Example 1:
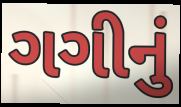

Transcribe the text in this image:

ગગીનું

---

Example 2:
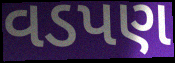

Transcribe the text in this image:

વડપણ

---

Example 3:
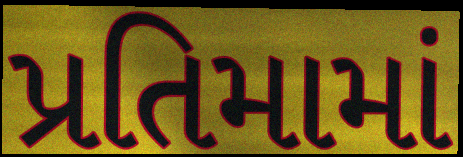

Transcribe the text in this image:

પ્રતિમામાં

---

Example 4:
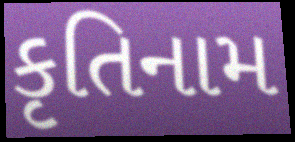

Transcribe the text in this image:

કૃતિનામ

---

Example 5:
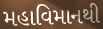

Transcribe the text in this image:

મહાવિમાનથી